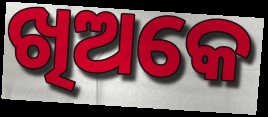
ଖିଅକେ